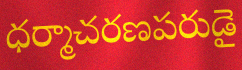
ధర్మాచరణపరుడై